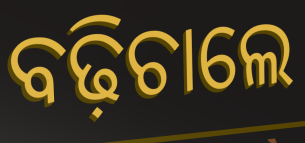
ବଢ଼ିଚାଲେ